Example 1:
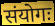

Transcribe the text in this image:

संयोगः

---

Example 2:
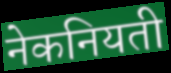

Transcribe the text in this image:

नेकनियती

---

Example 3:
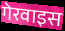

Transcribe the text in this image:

गेरवाइस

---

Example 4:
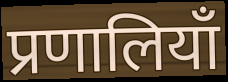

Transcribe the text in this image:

प्रणालियाँ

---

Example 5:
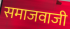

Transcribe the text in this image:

समाजवाजी